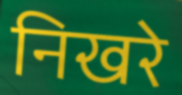
निखरे